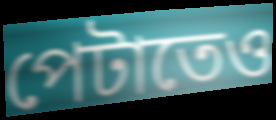
পেটাতেও